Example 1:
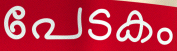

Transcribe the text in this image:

പേടകം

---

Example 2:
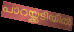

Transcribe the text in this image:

പാറയ്ക്കടിയിൽ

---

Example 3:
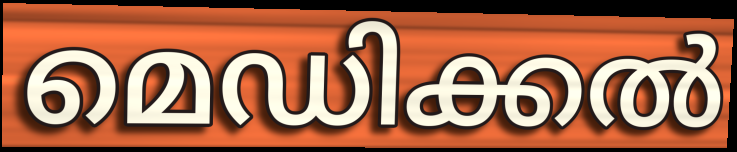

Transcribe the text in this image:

മെഡിക്കൽ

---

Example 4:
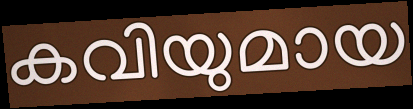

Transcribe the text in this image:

കവിയുമായ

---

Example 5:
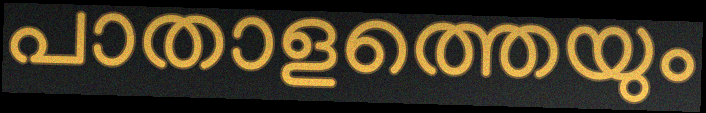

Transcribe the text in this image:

പാതാളത്തെയും